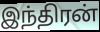
இந்திரன்